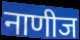
नाणीज